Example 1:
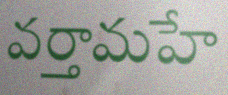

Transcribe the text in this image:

వర్తామహే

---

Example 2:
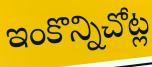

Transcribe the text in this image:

ఇంకొన్నిచోట్ల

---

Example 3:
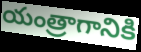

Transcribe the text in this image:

యంత్రాగానికి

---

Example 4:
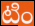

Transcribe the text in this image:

టిం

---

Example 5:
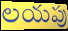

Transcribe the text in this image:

లయపు